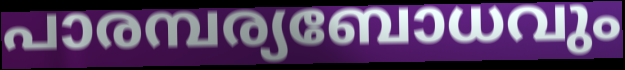
പാരമ്പര്യബോധവും